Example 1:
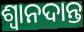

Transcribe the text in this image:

ଶ୍ଵାନଦାନ୍ତ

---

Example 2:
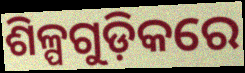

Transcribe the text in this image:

ଶିଳ୍ପଗୁଡ଼ିକରେ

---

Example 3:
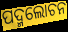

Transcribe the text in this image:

ପଦ୍ମଲୋଚନ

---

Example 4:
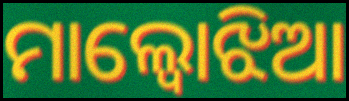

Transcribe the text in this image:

ମାଲ୍ବୋଝିଆ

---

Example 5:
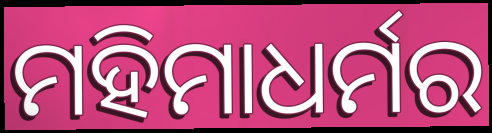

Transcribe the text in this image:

ମହିମାଧର୍ମର